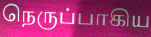
நெருப்பாகிய